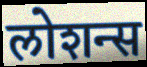
लोशन्स